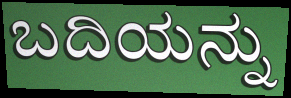
ಬದಿಯನ್ನು